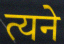
त्यने